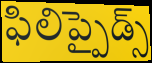
ఫిలిప్పైడ్స్